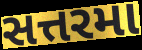
સત્તરમા